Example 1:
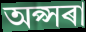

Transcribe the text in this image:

অপ্সৰা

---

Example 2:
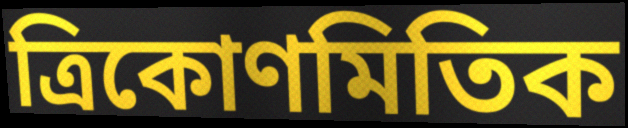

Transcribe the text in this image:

ত্ৰিকোণমিতিক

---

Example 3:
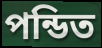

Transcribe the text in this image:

পন্ডিত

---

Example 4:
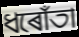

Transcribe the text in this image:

ধৰোঁতা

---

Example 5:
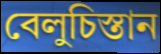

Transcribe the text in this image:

বেলুচিস্তান